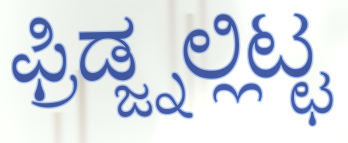
ಫ್ರಿಡ್ಜ್ನಲ್ಲಿಟ್ಟ